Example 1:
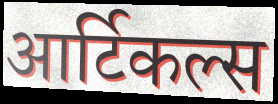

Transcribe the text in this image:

आर्टिकल्स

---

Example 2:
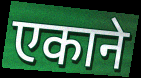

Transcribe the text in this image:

एकाने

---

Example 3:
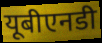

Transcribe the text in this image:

यूबीएनडी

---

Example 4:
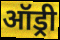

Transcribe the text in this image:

ऑड्री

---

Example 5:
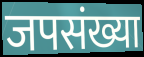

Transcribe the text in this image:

जपसंख्या